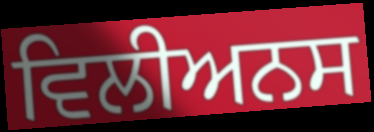
ਵਿਲੀਅਨਸ